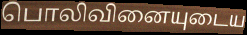
பொலிவினையுடைய